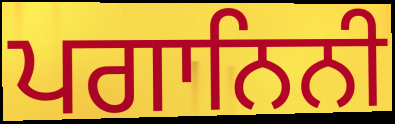
ਪਗਾਨਿਨੀ